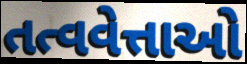
તત્વવેત્તાઓ